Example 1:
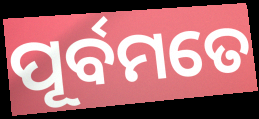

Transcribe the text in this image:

ପୂର୍ବମତେ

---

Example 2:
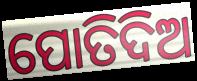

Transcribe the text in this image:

ପୋତିଦିଅ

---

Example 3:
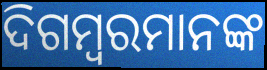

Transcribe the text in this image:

ଦିଗମ୍ବରମାନଙ୍କ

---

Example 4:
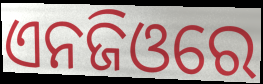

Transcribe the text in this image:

ଏନଜିଓରେ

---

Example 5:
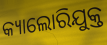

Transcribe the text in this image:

କ୍ୟାଲୋରିଯୁକ୍ତ